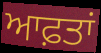
ਆਫ਼ਤਾਂ